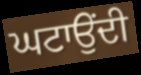
ਘਟਾਉਂਦੀ